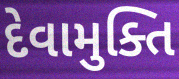
દેવામુક્તિ